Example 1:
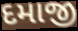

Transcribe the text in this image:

દમાજી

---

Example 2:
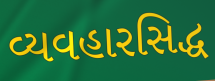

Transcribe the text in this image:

વ્યવહારસિદ્ધ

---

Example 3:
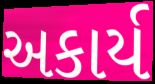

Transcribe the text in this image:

અકાર્ય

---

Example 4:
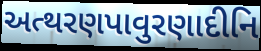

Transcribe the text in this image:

અત્થરણપાવુરણાદીનિ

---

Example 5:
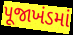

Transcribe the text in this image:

પૂજાખંડમાં